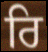
ਰਿ